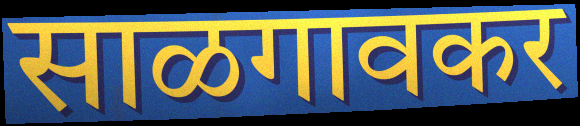
साळगावकर